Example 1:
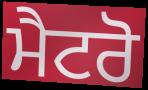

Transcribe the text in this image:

ਮੈਟਰੋ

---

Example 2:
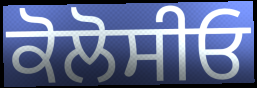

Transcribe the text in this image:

ਕੋਲੋਸੀਓ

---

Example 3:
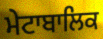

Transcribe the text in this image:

ਮੇਟਾਬਾਲਿਕ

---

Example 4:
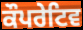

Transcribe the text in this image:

ਕੌਪਰੇਟਿਵ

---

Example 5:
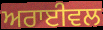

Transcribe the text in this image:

ਅਰਾਈਵਲ